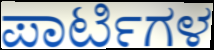
ಪಾರ್ಟಿಗಳ